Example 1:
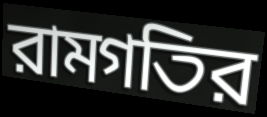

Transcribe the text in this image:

রামগতির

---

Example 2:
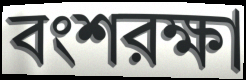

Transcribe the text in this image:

বংশরক্ষা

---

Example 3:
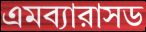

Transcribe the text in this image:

এমব্যারাসড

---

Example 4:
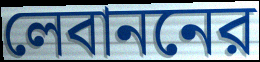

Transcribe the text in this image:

লেবাননের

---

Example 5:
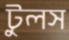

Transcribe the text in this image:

টুলস